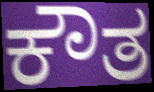
ಕೌತ